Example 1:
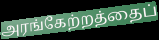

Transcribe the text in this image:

அரங்கேற்றத்தைப்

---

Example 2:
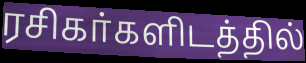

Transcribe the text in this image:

ரசிகர்களிடத்தில்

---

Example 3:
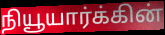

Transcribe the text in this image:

நியூயார்க்கின்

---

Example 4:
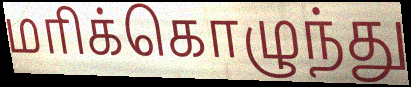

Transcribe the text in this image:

மரிக்கொழுந்து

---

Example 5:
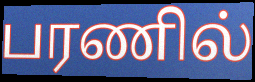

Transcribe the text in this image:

பரணில்